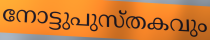
നോട്ടുപുസ്തകവും